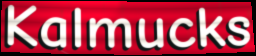
Kalmucks